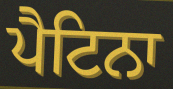
ਪੈਟਿਨਾ